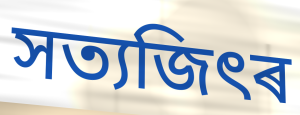
সত্যজিৎৰ